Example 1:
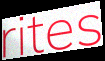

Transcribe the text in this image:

rites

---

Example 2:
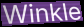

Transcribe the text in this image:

Winkle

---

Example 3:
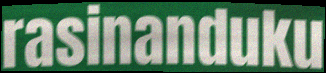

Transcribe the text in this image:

rasinanduku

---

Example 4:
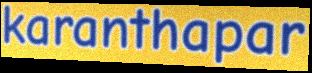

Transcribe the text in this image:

karanthapar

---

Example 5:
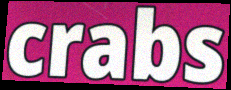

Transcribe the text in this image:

crabs